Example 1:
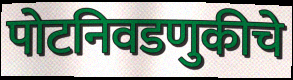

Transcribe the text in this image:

पोटनिवडणुकीचे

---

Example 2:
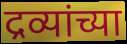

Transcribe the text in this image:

द्रव्यांच्या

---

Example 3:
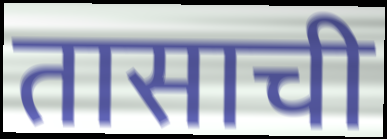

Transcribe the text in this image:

तासाची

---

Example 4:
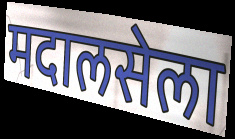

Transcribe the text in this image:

मदालसेला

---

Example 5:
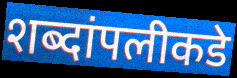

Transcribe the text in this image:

शब्दांपलीकडे